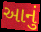
આનું